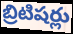
బ్రిటిషర్లు